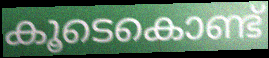
കൂടെകൊണ്ട്